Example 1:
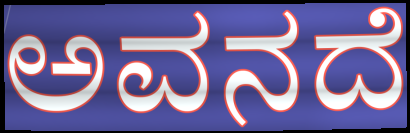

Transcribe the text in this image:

ಅವನದೆ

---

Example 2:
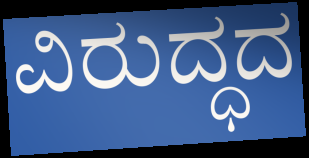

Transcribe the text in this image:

ವಿರುದ್ಧದ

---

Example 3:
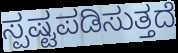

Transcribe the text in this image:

ಸ್ಪಷ್ಟಪಡಿಸುತ್ತದೆ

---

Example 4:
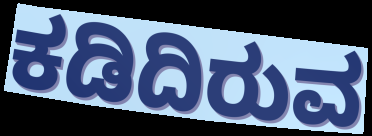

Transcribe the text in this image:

ಕಡಿದಿರುವ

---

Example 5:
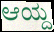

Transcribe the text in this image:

ಆಯ್ದ